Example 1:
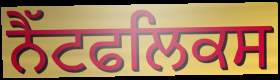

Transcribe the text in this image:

ਨੈੱਟਫਲਿਕਸ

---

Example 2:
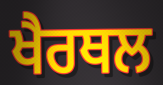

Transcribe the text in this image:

ਖੈਰਥਲ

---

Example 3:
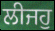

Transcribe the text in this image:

ਲੀਜਹੁ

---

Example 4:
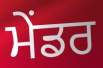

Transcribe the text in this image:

ਮੇਂਡਰ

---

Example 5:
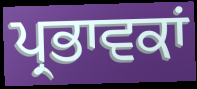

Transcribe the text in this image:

ਪ੍ਰਭਾਵਕਾਂ